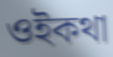
ওইকথা